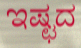
ಇಷ್ಟದ